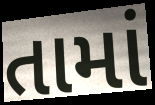
તામાં